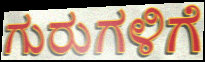
ಗುರುಗಳಿಗೆ